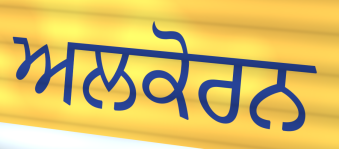
ਅਲਕੋਰਨ